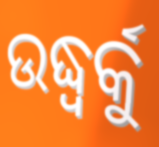
ଉଦ୍ଧ୍ୱର୍କୁ